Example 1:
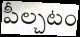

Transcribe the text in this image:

పీల్చటం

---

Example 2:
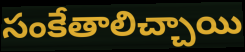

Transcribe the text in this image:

సంకేతాలిచ్చాయి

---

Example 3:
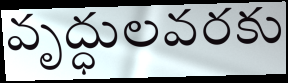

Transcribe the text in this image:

వృద్ధులవరకు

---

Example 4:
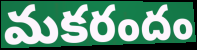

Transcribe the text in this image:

మకరందం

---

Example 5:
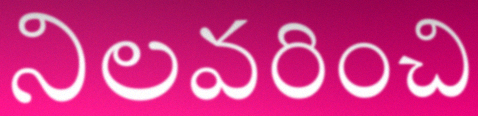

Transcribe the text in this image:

నిలవరించి